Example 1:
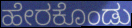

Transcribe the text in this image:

ಹೇರಕೊಂಡು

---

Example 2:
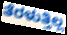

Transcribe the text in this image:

ತೆರಳುತ್ತಿಲ್ಲ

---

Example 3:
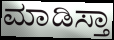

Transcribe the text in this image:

ಮಾಡಿಸ್ತಾ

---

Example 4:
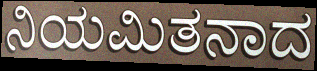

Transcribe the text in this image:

ನಿಯಮಿತನಾದ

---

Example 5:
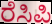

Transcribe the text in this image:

ರೆಸಿಪಿ